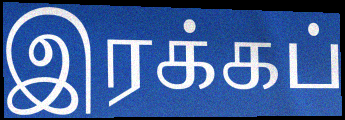
இரக்கப்